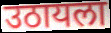
उठायला